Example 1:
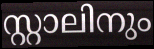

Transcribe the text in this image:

സ്റ്റാലിനും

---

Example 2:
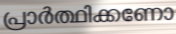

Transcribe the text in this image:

പ്രാർത്ഥിക്കണോ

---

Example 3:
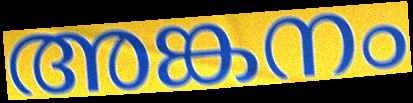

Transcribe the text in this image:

അങ്കനം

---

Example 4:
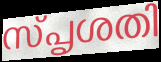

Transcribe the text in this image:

സ്പൃശതി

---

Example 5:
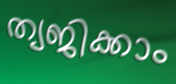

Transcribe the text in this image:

ത്യജിക്കാം